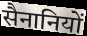
सैनानियों